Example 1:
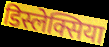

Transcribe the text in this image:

डिस्लेक्सिया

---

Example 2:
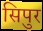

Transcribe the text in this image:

सिपुर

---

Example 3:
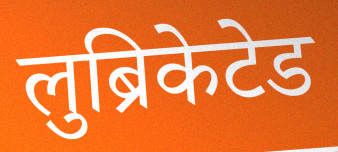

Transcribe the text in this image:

लुब्रिकेटेड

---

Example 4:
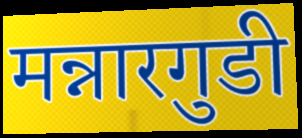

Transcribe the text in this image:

मन्नारगुडी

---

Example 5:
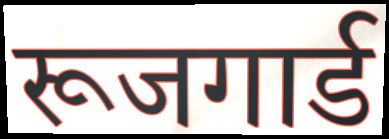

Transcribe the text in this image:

रूजगार्ड